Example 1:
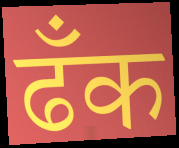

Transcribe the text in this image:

ढँक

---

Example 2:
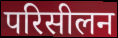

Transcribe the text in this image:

परिसीलन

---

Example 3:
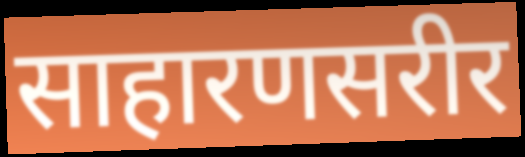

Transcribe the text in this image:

साहारणसरीर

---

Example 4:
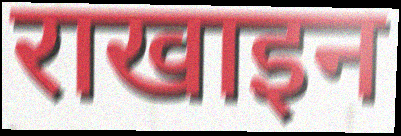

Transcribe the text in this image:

राखाइन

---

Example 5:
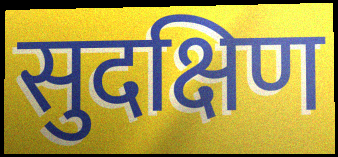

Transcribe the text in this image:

सुदक्षिण